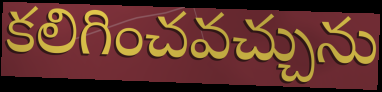
కలిగించవచ్చును